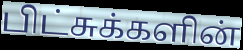
பிட்சுக்களின்